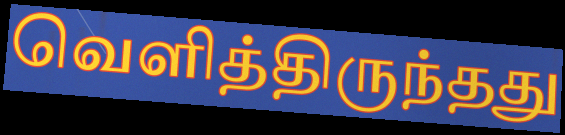
வெளித்திருந்தது